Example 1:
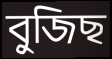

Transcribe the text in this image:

বুজিছ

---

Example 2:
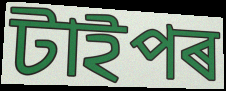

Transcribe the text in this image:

টাইপৰ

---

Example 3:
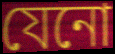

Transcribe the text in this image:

যেনো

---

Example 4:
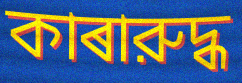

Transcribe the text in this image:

কাৰাৰুদ্ধ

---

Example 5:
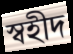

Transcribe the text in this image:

স্বহীদ